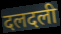
दलदली